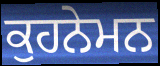
ਕੁਹਨੇਮਨ